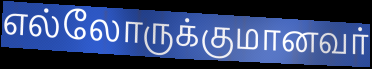
எல்லோருக்குமானவர்